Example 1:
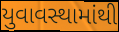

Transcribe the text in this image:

યુવાવસ્થામાંથી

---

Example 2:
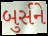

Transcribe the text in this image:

બુર્સને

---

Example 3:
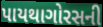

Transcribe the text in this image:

પાયથાગોરસની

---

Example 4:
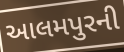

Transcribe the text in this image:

આલમપુરની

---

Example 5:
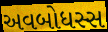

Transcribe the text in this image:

અવબોધસ્સ